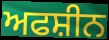
ਅਫਸ਼ੀਨ